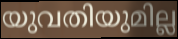
യുവതിയുമില്ല